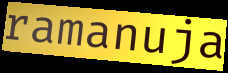
ramanuja